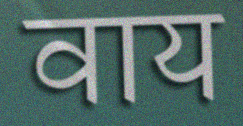
वाय